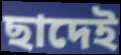
ছাদেই